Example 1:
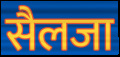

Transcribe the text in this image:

सैलजा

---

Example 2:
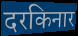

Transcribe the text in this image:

दरकिनार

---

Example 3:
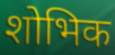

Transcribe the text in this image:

शोभिक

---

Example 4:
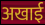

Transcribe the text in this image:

अखाई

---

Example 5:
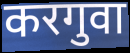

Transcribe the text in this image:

करगुवा